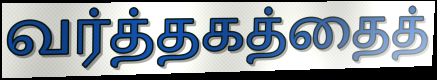
வர்த்தகத்தைத்